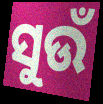
ସୁଉଁ